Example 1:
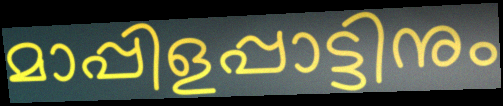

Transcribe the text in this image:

മാപ്പിളപ്പാട്ടിനും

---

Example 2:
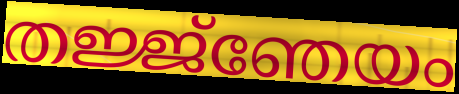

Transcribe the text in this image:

തജ്ജ്ഞേയം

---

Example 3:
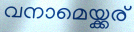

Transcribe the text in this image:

വനാമെയ്ക്കര്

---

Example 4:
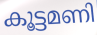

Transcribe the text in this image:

കൂട്ടമണി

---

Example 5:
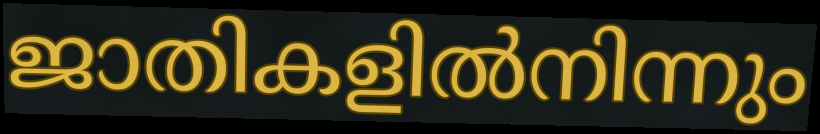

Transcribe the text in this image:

ജാതികളിൽനിന്നും